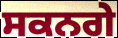
ਸਕਨਗੇ